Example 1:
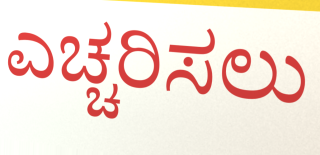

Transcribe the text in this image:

ಎಚ್ಚರಿಸಲು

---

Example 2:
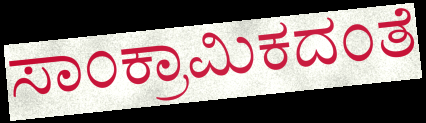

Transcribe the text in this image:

ಸಾಂಕ್ರಾಮಿಕದಂತೆ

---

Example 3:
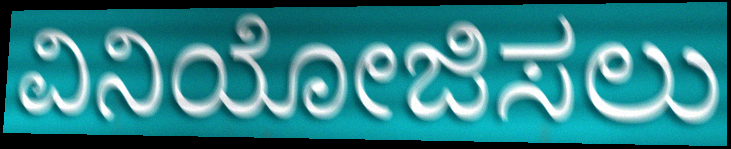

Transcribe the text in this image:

ವಿನಿಯೋಜಿಸಲು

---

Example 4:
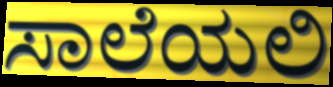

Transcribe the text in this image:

ಸಾಲೆಯಲಿ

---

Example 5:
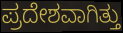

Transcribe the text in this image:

ಪ್ರದೇಶವಾಗಿತ್ತು